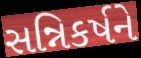
સન્નિકર્ષને